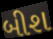
બીશ